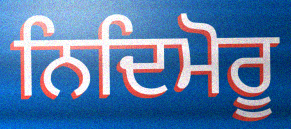
ਨਿਦਿਮੋਰੂ